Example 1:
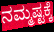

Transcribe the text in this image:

ನಮ್ಮಷ್ಟಕ್ಕೆ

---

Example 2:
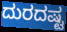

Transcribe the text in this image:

ದುರದಷ್ಟ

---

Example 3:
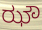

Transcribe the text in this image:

ಝೌ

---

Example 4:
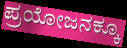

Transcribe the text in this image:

ಪ್ರಯೋಜನಕ್ಕೂ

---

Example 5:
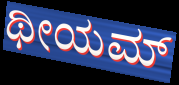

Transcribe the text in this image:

ಥೀಯಮ್